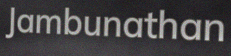
Jambunathan